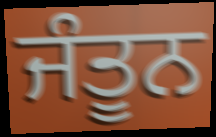
ਜੰਤੂਨ